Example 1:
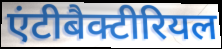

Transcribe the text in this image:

एंटीबैक्टीरियल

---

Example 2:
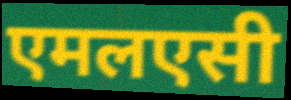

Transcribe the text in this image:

एमलएसी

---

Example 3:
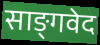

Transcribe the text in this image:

साङ्गवेद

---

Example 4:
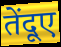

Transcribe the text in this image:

तेंदूए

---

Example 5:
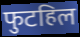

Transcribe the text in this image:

फुटहिल